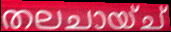
തലചായ്ച്